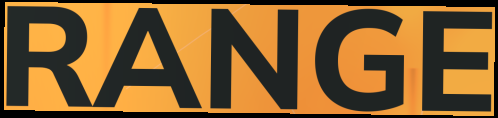
RANGE